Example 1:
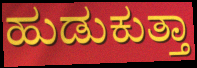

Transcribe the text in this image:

ಹುಡುಕುತ್ತಾ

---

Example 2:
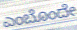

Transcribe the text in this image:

ಎಂಬೊಂದೇ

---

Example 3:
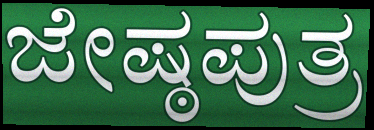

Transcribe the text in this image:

ಜೇಷ್ಠಪುತ್ರ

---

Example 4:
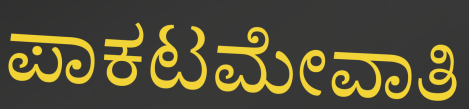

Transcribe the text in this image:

ಪಾಕಟಮೇವಾತಿ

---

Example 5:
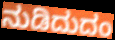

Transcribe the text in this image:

ನುಡಿದುದಂ